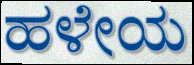
ಹಳೇಯ